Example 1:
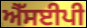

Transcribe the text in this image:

ਐੱਸਈਪੀ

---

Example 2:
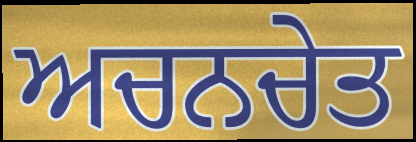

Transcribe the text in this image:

ਅਚਨਚੇਤ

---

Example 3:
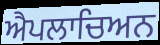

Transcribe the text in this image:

ਐਪਲਾਚਿਅਨ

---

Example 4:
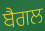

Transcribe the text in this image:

ਬੈਗਲ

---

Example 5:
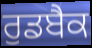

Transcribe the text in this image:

ਰੁਡਬੈਕ